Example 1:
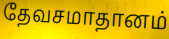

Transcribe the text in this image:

தேவசமாதானம்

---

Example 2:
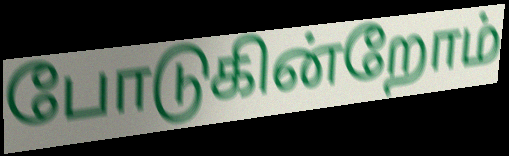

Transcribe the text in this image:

போடுகின்றோம்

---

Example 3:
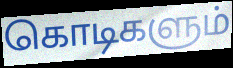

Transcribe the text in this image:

கொடிகளும்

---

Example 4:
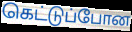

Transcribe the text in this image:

கெட்டுப்போன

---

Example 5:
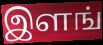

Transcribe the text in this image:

இளங்